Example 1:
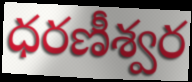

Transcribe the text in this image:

ధరణీశ్వర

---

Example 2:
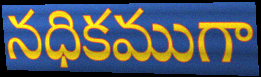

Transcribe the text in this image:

నధికముగా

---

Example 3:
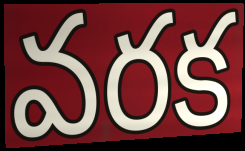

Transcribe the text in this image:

వరక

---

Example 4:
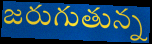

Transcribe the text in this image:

జరుగుతున్న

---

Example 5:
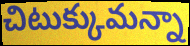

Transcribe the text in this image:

చిటుక్కుమన్నా